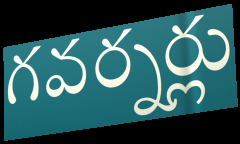
గవర్నర్లు